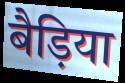
बैड़िया